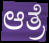
ಆತ್ರೆ